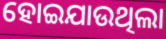
ହୋଇଯାଉଥିଲା